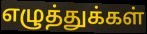
எழுத்துக்கள்